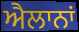
ਐਲਾਨਾਂ